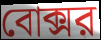
বোক্সর